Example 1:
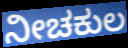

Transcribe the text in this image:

ನೀಚಕುಲ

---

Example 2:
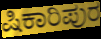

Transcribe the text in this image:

ಷಿಕಾರಿಪುರ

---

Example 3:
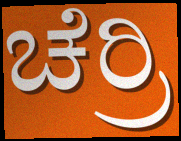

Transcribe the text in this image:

ಚೆರ್ರಿ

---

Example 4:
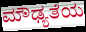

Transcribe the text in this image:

ಮೌಢ್ಯತೆಯ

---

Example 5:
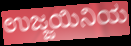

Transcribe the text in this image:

ಉಜ್ಜಯಿನಿಯ